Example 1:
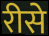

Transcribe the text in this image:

रीसे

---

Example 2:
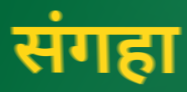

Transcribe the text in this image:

संगहा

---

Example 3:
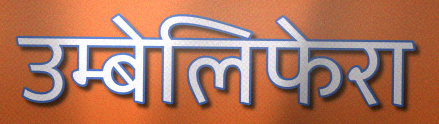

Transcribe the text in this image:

उम्बेलिफेरा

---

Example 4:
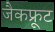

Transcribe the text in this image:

जैकफ्रूट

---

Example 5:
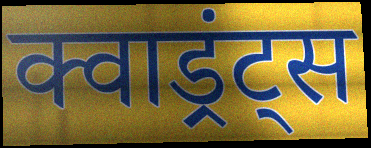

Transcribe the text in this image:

क्वाड्रंट्स